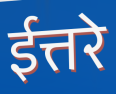
ईत्तरे